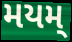
મયમ્